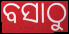
ବସାଠୁ